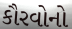
કૌરવોનો